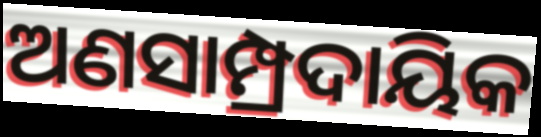
ଅଣସାମ୍ପ୍ରଦାୟିକ